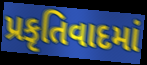
પ્રકૃતિવાદમાં